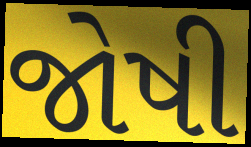
જોષી